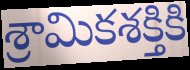
శ్రామికశక్తికి